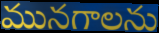
మునగాలను